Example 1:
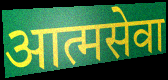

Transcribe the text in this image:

आत्मसेवा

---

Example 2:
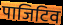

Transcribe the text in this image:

पाजिटिव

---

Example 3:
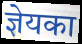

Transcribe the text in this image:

ज्ञेयका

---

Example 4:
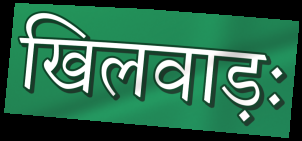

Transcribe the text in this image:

खिलवाड़ः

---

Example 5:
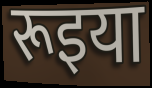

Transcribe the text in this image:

रूइया